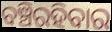
ବଞ୍ଚିରହିବାର